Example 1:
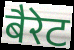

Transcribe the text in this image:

बैरेट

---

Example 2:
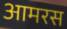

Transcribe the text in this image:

आमरस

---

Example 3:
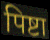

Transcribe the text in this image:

पिष्टा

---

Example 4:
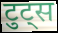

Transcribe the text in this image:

टुट्स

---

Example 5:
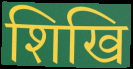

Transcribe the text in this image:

शिखि